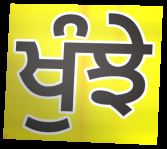
ਖੁੰਝੇ